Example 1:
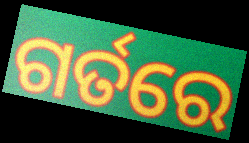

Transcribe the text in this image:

ଗର୍ତରେ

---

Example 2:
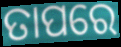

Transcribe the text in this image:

ତାପରେ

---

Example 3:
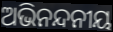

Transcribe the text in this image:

ଅଭିନନ୍ଦନୀୟ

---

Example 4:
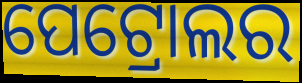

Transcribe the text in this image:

ପେଟ୍ରୋଲର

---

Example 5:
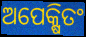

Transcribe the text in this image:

ଅପେକ୍ଷିତଂ